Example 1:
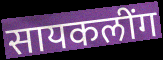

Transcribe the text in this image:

सायकलींग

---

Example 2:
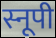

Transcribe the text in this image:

स्नूपी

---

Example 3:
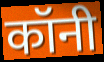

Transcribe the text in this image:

कॉनी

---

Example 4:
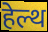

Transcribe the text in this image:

हेल्थ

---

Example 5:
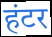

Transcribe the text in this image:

हंटर